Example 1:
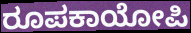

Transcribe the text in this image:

ರೂಪಕಾಯೋಪಿ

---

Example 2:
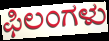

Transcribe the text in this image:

ಫಿಲಂಗಳು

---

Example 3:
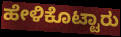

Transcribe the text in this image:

ಹೇಳಿಕೊಟ್ಟಾರು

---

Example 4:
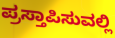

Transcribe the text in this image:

ಪ್ರಸ್ತಾಪಿಸುವಲ್ಲಿ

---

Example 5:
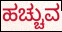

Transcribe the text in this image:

ಹಚ್ಚುವ